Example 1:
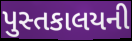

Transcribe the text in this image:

પુસ્તકાલયની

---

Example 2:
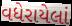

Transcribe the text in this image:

વધેરાયેલાં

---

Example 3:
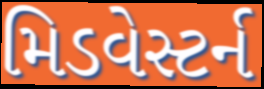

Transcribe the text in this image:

મિડવેસ્ટર્ન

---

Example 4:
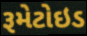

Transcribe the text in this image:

રૂમેટોઇડ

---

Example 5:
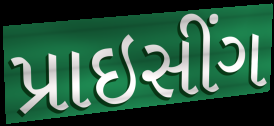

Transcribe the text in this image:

પ્રાઇસીંગ